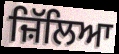
ਜ਼ਿੱਲਿਆ